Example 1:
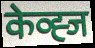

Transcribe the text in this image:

केव्ह्ज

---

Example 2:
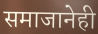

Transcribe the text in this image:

समाजानेही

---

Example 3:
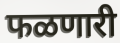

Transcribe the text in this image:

फळणारी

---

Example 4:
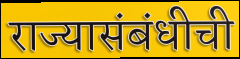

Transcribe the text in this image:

राज्यासंबंधीची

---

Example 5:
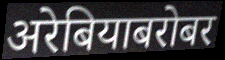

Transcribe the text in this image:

अरेबियाबरोबर